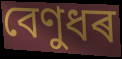
বেণুধৰ